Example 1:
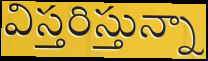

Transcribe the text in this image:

విస్తరిస్తున్నా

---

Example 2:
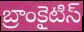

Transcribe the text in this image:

బ్రాంకైటిస్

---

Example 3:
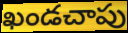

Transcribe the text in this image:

ఖండచాపు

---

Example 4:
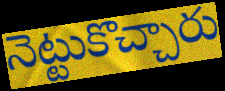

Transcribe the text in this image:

నెట్టుకొచ్చారు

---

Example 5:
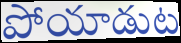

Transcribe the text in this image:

పోయాడుట